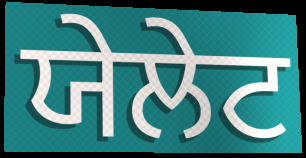
ਯੇਲੇਟ